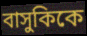
বাসুকিকে